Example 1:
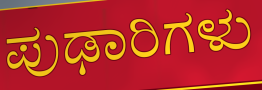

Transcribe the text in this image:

ಪುಢಾರಿಗಳು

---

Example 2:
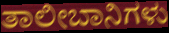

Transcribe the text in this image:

ತಾಲೀಬಾನಿಗಳು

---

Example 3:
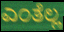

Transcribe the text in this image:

ಎಂತೆಲ್ಲ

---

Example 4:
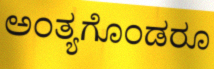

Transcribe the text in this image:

ಅಂತ್ಯಗೊಂಡರೂ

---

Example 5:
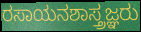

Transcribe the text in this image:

ರಸಾಯನಶಾಸ್ತ್ರಜ್ಞರು